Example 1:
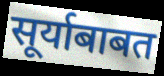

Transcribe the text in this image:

सूर्याबाबत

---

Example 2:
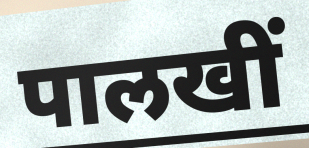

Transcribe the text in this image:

पालखीं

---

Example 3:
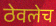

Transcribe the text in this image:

ठेवलेच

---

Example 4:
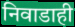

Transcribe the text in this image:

निवाडाही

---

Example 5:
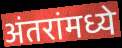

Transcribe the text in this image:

अंतरांमध्ये